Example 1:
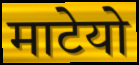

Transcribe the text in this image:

माटेयो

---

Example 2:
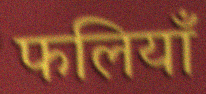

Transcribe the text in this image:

फलियाँ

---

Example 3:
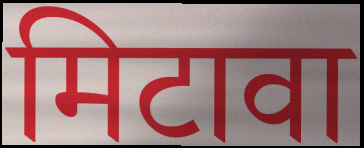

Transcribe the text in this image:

मिटावा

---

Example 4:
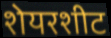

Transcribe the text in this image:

शेयरशीट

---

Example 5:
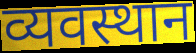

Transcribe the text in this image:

व्यवस्थान